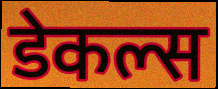
डेकल्स